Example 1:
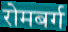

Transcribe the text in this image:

रोमबर्ग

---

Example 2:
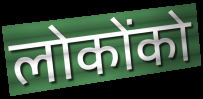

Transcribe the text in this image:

लोकोंको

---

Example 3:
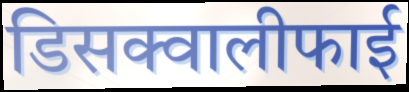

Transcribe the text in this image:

डिसक्वालीफाई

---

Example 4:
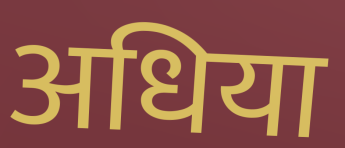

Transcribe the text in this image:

अधिया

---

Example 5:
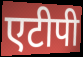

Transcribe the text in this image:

एटीपी